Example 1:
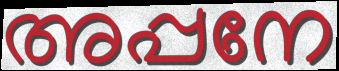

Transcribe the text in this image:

അപ്പനേ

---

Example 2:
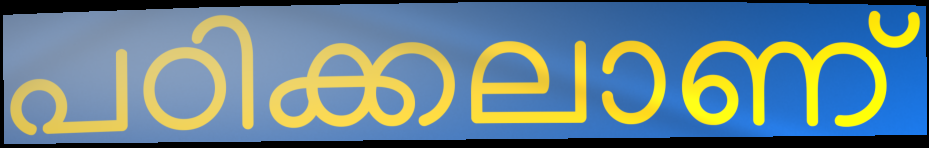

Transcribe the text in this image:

പഠിക്കലാണ്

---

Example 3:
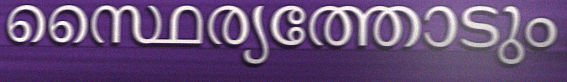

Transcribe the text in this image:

സ്ഥൈര്യത്തോടും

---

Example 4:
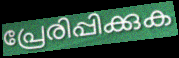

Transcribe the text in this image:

പ്രേരിപ്പിക്കുക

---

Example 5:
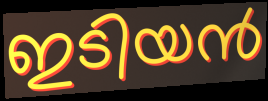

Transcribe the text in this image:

ഇടിയൻ